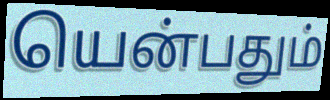
யென்பதும்